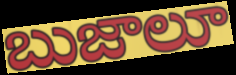
బుజాలూ